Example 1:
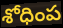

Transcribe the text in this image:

శోధింప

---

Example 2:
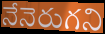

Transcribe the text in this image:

నేనెరుగని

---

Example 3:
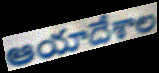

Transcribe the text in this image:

ఆయాదేశాల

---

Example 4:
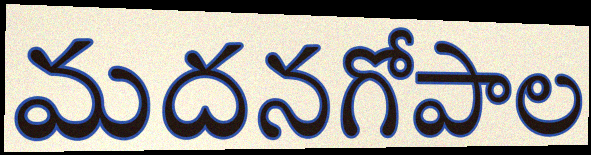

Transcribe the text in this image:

మదనగోపాల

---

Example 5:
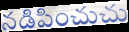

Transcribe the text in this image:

నడిపించుచు